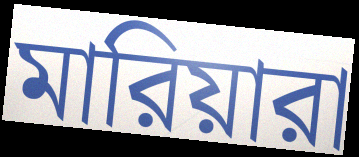
মারিয়ারা